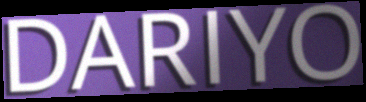
DARIYO